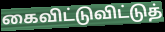
கைவிட்டுவிட்டுத்